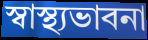
স্বাস্থ্যভাবনা